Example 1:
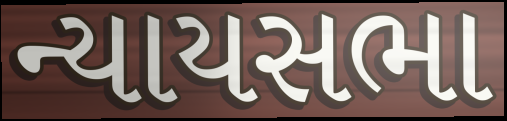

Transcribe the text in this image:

ન્યાયસભા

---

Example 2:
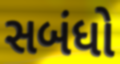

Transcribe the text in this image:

સબંધો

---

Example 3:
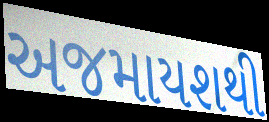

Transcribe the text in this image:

અજમાયશથી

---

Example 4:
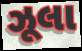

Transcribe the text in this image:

ઝૂલા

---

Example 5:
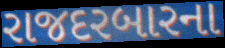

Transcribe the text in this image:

રાજદરબારના